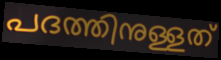
പദത്തിനുള്ളത്